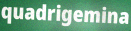
quadrigemina